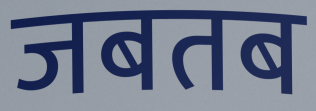
जबतब